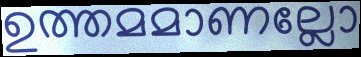
ഉത്തമമാണല്ലോ